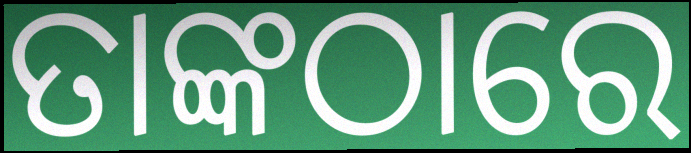
ତାଙ୍କଠାରେ